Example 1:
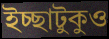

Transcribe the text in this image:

ইচ্ছাটুকুও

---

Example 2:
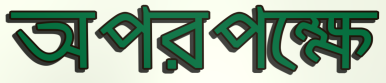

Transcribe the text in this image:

অপরপক্ষে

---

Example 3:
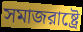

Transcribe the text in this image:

সমাজরাষ্ট্রে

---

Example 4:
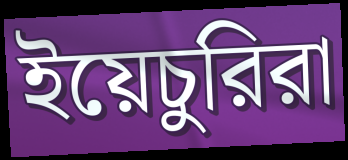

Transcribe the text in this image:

ইয়েচুরিরা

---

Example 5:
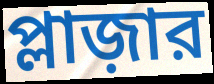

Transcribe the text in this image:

প্লাজ়ার